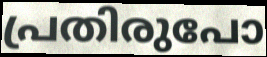
പ്രതിരുപോ